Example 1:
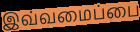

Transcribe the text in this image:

இவ்வமைப்பை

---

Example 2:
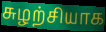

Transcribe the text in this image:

சுழற்சியாக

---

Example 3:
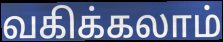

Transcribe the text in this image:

வகிக்கலாம்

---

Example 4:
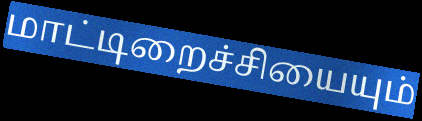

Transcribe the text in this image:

மாட்டிறைச்சியையும்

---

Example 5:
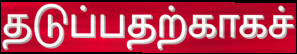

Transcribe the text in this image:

தடுப்பதற்காகச்